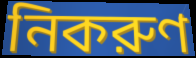
নিকৰুণ